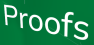
Proofs